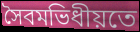
সৈবমভিধীয়তে